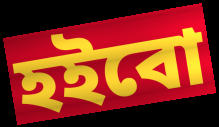
হইবো